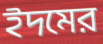
ইদমের